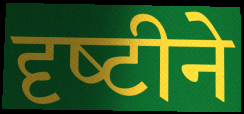
दृष्‍टीने